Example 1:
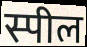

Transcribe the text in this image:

स्पील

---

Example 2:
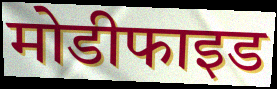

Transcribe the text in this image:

मोडीफाइड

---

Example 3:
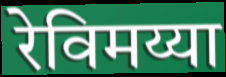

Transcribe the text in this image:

रेविमय्या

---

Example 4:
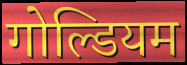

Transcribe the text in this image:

गोल्डियम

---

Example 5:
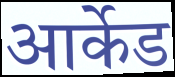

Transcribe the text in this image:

आर्केड